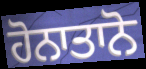
ਹੋਨਾਤਾਨੋ